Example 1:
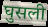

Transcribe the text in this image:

घुसली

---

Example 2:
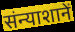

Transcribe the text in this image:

संन्याशानें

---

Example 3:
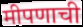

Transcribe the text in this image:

मीपणाची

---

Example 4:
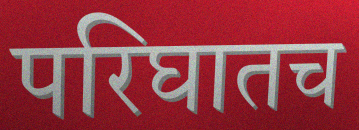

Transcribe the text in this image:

परिघातच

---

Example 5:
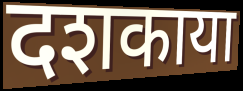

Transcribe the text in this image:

दशकाया